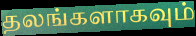
தலங்களாகவும்